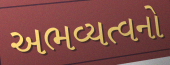
અભવ્યત્વનો